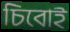
চিবোই